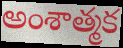
అంశాత్మక